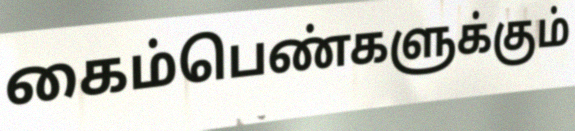
கைம்பெண்களுக்கும்